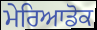
ਮੇਰਿਆਡੋਕ